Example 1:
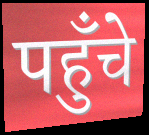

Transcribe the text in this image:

पहुँचे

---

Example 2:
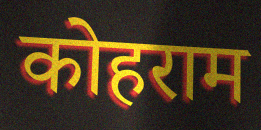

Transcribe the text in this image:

कोहराम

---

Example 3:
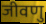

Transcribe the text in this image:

जीवणु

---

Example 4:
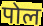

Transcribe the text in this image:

पोल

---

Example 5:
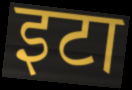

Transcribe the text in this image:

इटा